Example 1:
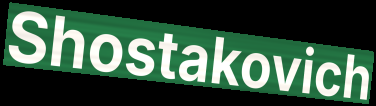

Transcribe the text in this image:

Shostakovich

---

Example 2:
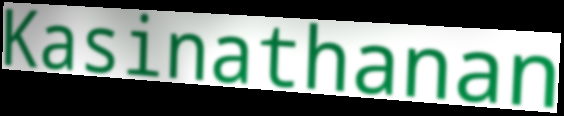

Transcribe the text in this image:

Kasinathanan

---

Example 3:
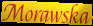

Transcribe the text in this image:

Morawska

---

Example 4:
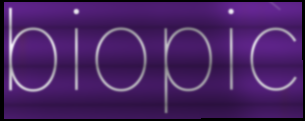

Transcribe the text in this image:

biopic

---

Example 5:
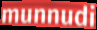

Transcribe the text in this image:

munnudi